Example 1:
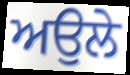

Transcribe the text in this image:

ਅਉਲੇ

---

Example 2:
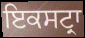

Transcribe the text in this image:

ਇਕਸਟ੍ਰਾ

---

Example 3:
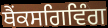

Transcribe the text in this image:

ਥੈਂਕਸਗਿਵਿੰਗ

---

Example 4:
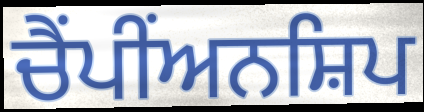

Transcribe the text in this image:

ਚੈਂਪੀਂਅਨਸ਼ਿਪ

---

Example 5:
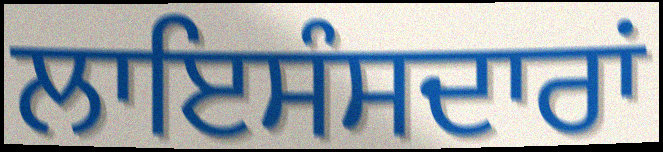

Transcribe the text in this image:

ਲਾਇਸੰਸਦਾਰਾਂ